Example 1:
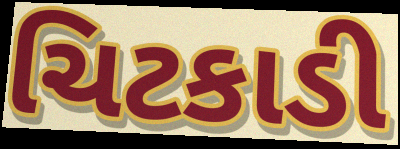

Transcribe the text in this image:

ચિટકાડી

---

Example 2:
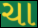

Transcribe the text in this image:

ચા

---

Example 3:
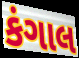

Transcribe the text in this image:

કંગાલ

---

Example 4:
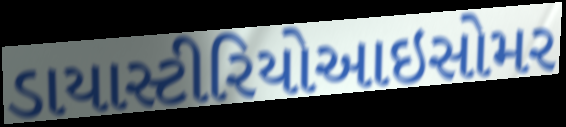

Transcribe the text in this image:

ડાયાસ્ટીરિયોઆઇસોમર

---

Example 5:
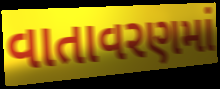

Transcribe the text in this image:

વાતાવરણમાં